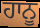
ਹਾਨੂ